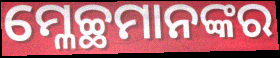
ମ୍ଳେଚ୍ଛମାନଙ୍କର